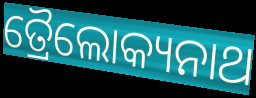
ତ୍ରୈଲୋକ୍ୟନାଥ